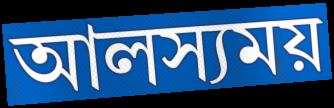
আলস্যময়